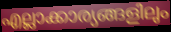
എല്ലാക്കാര്യങ്ങളിലും